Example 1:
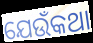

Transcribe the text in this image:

ଯେଉଁକଥା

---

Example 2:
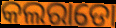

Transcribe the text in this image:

କଲରାଡୋ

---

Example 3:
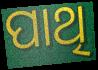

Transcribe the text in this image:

ପାଥି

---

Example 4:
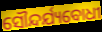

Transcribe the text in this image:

ସୌନ୍ଦର୍ଯ୍ୟବୋଧୀ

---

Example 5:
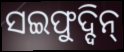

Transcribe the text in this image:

ସଇଫୁଦ୍ଦିନ୍